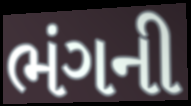
ભંગની